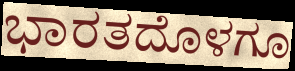
ಭಾರತದೊಳಗೂ